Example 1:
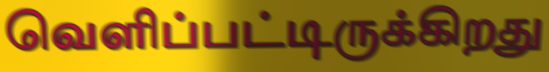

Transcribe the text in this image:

வெளிப்பட்டிருக்கிறது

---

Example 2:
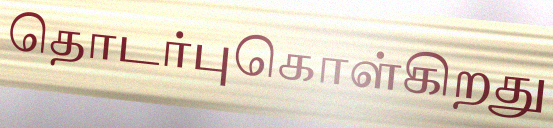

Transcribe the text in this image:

தொடர்புகொள்கிறது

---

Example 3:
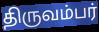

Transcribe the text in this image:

திருவம்பர்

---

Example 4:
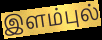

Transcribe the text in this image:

இளம்புல்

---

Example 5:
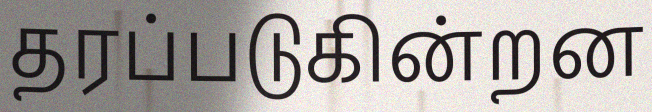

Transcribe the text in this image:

தரப்படுகின்றன